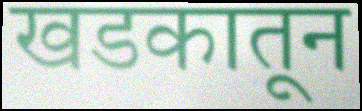
खडकातून